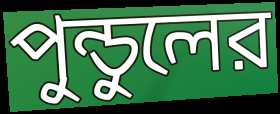
পুন্ডুলের